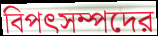
বিপৎসম্পদের